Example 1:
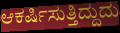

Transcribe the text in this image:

ಆಕರ್ಷಿಸುತ್ತಿದ್ದುದು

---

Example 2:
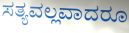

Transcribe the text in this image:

ಸತ್ಯವಲ್ಲವಾದರೂ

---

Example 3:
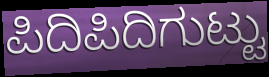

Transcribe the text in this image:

ಪಿದಿಪಿದಿಗುಟ್ಟು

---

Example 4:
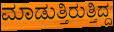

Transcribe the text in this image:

ಮಾಡುತ್ತಿರುತ್ತಿದ್ದ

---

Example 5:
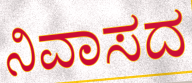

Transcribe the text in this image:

ನಿವಾಸದ